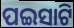
ପଇସାଟି